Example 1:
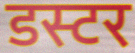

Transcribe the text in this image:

डस्टर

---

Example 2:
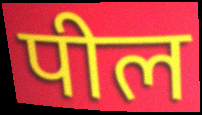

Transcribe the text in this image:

पील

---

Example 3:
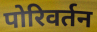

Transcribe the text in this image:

पोरिवर्तन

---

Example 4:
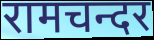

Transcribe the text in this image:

रामचन्दर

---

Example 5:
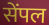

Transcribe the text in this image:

सेंपल